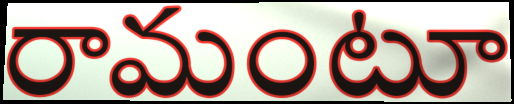
రామంటూ